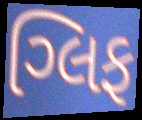
ગ્લિફ